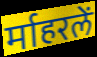
र्माहरलें